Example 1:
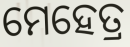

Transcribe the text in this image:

ମେହେତ୍ର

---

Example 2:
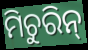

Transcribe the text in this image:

ମିଚୁରିନ୍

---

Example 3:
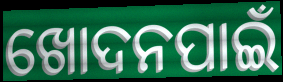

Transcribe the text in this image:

ଖୋଦନପାଇଁ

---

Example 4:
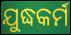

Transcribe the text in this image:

ଯୁଦ୍ଧକର୍ମ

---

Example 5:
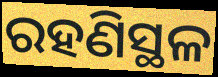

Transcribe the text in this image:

ରହଣିସ୍ଥଳ